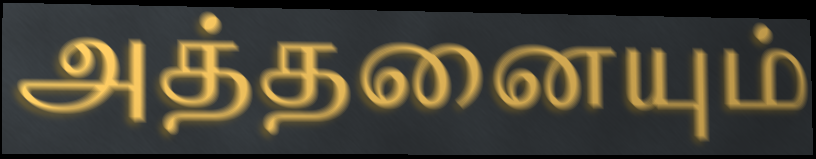
அத்தனையும்